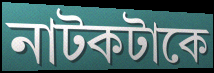
নাটকটাকে